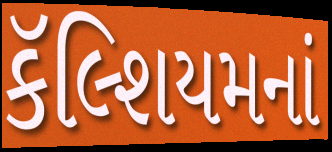
કૅલ્શિયમનાં